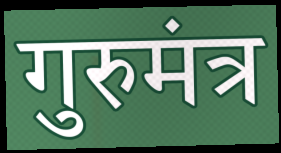
गुरुमंत्र